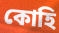
কোহি